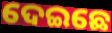
ଦେଇଛେ